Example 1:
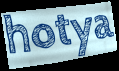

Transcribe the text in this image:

hotya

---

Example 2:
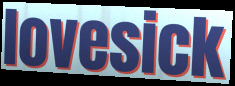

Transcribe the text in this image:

lovesick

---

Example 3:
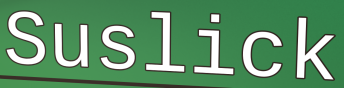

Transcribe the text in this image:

Suslick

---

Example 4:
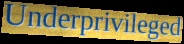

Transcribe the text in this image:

Underprivileged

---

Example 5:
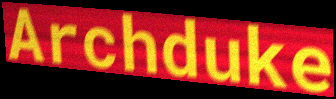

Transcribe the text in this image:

Archduke